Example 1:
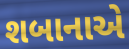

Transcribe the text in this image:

શબાનાએ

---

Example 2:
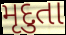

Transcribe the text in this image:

મૃદુતા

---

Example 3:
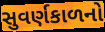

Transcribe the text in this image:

સુવર્ણકાળનો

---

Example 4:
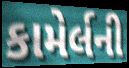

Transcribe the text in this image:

કામેર્લની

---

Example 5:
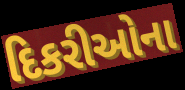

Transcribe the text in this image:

દિકરીઓના